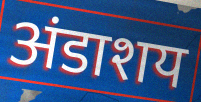
अंडाशय